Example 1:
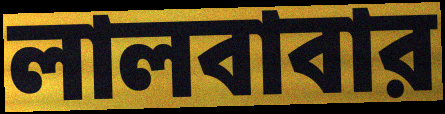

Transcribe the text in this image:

লালবাবার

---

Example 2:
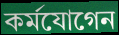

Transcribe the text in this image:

কর্মযোগেন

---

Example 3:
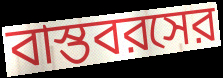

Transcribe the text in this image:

বাস্তবরসের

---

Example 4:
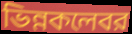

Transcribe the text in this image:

ভিন্নকলেবর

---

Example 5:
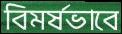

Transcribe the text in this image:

বিমর্ষভাবে